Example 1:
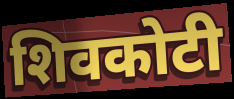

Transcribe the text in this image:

शिवकोटी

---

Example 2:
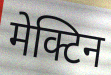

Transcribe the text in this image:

मेक्टिन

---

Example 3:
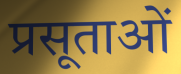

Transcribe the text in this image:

प्रसूताओं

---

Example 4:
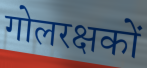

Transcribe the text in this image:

गोलरक्षकों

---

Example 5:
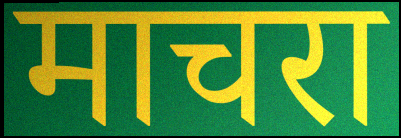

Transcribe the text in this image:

माचरा